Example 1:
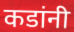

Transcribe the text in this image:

कडांनी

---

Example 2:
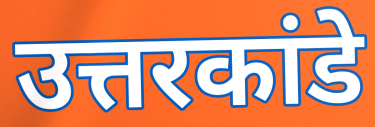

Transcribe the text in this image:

उत्तरकांडे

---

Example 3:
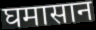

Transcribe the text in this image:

घमासान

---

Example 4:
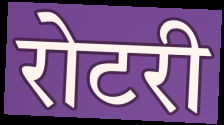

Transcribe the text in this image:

रोटरी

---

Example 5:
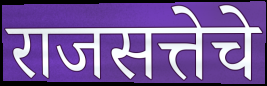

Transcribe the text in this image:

राजसत्तेचे